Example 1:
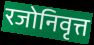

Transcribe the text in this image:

रजोनिवृत्त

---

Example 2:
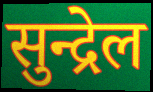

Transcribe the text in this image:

सुन्द्रेल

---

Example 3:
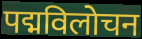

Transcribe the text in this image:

पद्मविलोचन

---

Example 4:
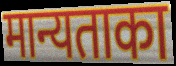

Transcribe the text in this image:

मान्यताका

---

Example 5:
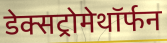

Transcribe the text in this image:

डेक्सट्रोमेथॉर्फन